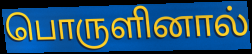
பொருளினால்